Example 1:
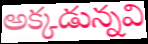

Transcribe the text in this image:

అక్కడున్నవి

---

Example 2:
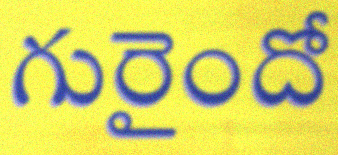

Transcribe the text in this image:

గురైందో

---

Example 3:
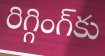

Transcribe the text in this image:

రిగ్గింగ్‌కు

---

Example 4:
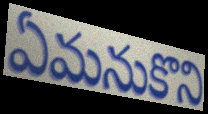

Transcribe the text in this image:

ఏమనుకొని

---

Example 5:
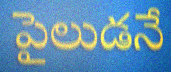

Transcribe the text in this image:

పైలుడనే